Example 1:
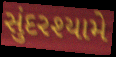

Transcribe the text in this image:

સુંદરશ્યામે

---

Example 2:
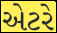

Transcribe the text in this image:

એટરે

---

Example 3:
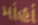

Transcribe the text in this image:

માંહાં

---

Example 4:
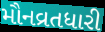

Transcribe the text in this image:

મૌનવ્રતધારી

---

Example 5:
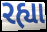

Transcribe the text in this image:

રહ્યા